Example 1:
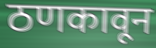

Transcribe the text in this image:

ठणकावून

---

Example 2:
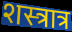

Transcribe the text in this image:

शस्त्रात्र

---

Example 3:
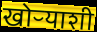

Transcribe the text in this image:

खोऱ्याशी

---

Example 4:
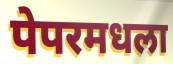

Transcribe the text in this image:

पेपरमधला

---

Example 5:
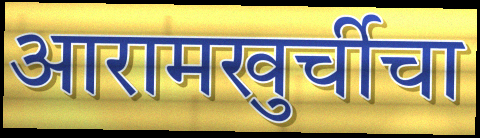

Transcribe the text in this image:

आरामखुर्चीचा